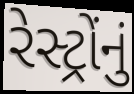
રેસ્ટ્રોંનું